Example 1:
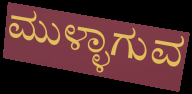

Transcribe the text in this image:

ಮುಳ್ಳಾಗುವ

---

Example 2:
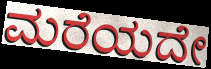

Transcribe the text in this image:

ಮರೆಯದೇ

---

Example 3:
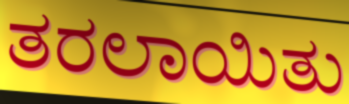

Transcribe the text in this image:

ತರಲಾಯಿತು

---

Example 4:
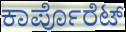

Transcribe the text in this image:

ಕಾರ್ಪೊರೆಟ್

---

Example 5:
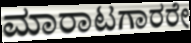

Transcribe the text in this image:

ಮಾರಾಟಗಾರರೇ